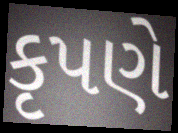
કૃપણે